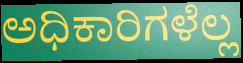
ಅಧಿಕಾರಿಗಳೆಲ್ಲ